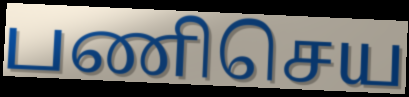
பணிசெய